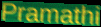
Pramathi